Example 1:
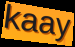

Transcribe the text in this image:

kaay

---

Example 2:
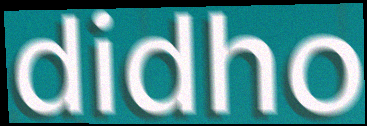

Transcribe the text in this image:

didho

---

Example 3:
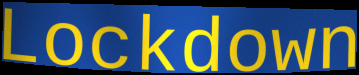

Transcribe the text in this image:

Lockdown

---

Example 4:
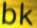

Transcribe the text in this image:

bk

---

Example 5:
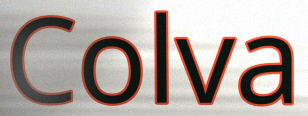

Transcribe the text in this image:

Colva